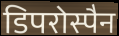
डिपरोस्पैन